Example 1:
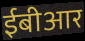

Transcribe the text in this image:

ईबीआर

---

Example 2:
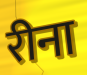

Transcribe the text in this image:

रीना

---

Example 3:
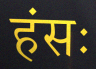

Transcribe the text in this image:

हंसः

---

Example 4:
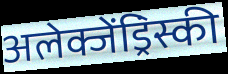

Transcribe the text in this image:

अलेक्जेंड्रिंस्की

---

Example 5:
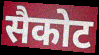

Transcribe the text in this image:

सैकोट